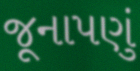
જૂનાપણું